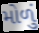
મોળું